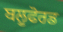
ਬਲੂਫੋਰਡ